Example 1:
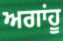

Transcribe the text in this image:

ਅਗਾਂਹੂ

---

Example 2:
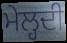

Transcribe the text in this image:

ਮੇਲ੍ਹਦੀ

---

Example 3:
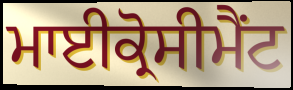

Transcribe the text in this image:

ਮਾਈਕ੍ਰੋਸੀਮੈਂਟ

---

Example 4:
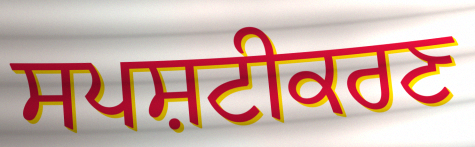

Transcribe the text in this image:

ਸਪਸ਼ਟੀਕਰਣ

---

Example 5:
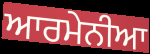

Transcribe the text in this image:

ਆਰਮੇਨੀਆ